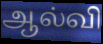
ஆல்வி